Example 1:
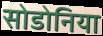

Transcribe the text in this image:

सोडोनिया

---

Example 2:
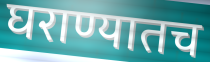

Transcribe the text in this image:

घराण्यातच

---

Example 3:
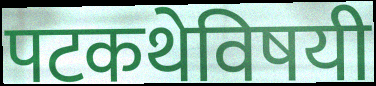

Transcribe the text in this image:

पटकथेविषयी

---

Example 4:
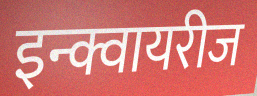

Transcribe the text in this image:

इन्क्वायरीज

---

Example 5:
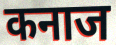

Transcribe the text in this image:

कनाज